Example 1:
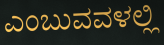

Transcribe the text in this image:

ಎಂಬುವವಳಲ್ಲಿ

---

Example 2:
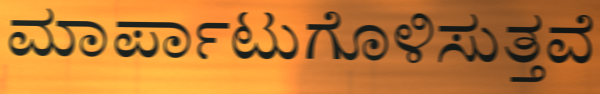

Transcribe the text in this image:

ಮಾರ್ಪಾಟುಗೊಳಿಸುತ್ತವೆ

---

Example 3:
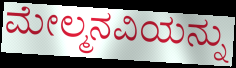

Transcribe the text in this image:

ಮೇಲ್ಮನವಿಯನ್ನು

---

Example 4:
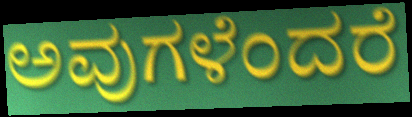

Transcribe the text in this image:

ಅವುಗಳೆಂದರೆ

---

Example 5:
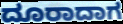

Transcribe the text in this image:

ದೂರಾದಾಗ